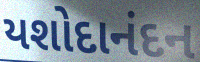
યશોદાનંદન